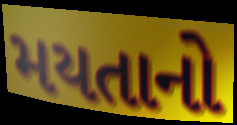
મયતાનો